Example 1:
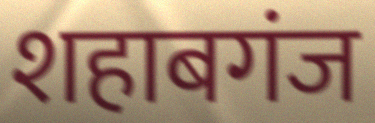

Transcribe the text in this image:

शहाबगंज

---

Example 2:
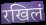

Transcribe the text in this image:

रखिलं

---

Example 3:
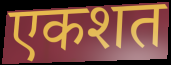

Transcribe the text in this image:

एकशत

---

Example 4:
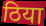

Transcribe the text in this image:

ठिया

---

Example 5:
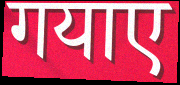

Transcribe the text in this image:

गयाए